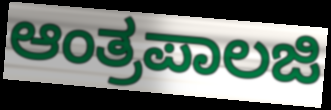
ಆಂತ್ರಪಾಲಜಿ